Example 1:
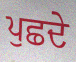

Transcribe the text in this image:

ਪੁਛਦੇ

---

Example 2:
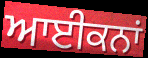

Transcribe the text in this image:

ਆਈਕਨਾਂ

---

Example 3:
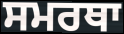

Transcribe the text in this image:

ਸਮਰਥਾ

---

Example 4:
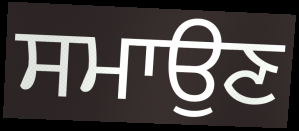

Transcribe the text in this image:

ਸਮਾਉਣ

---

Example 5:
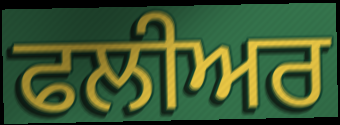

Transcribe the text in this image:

ਫਲੀਅਰ